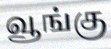
வூங்கு